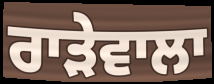
ਰਾੜੇਵਾਲਾ